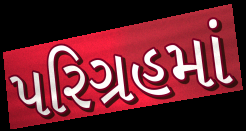
પરિગ્રહમાં